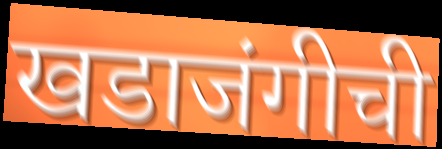
खडाजंगीची